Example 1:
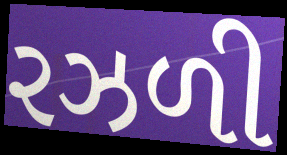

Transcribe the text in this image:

રઝળી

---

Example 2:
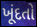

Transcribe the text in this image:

ખૂંદતો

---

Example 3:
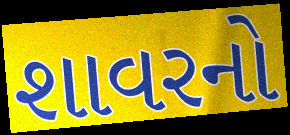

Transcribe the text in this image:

શાવરનો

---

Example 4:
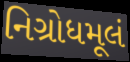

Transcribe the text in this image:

નિગ્રોધમૂલં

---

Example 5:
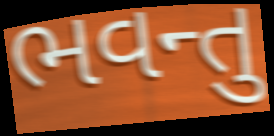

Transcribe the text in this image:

ભવન્તુ